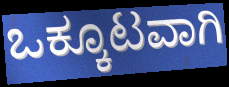
ಒಕ್ಕೂಟವಾಗಿ